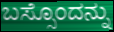
ಬಸ್ಸೊಂದನ್ನು